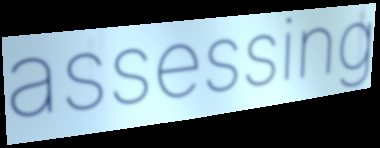
assessing